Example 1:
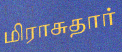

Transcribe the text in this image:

மிராசுதார்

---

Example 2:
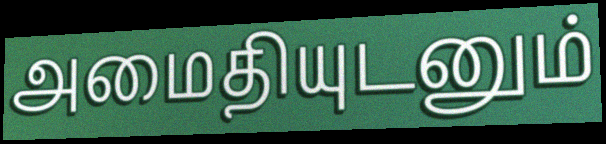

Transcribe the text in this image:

அமைதியுடனும்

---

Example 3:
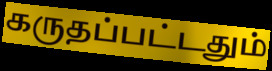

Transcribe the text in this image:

கருதப்பட்டதும்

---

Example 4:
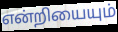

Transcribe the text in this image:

என்றியையும்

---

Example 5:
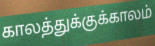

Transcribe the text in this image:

காலத்துக்குக்காலம்